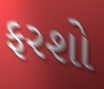
ફરશો